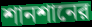
শানশানের